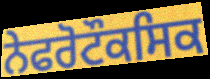
ਨੇਫਰੋਟੌਕਸਿਕ